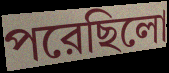
পরেছিলো